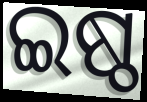
ଇଷ୍ଠ